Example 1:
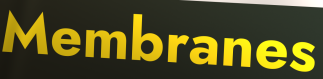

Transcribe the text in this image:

Membranes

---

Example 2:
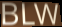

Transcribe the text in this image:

BLW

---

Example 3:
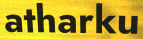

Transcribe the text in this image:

atharku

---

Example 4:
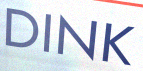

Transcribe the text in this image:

DINK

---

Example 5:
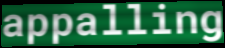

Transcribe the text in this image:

appalling